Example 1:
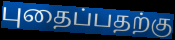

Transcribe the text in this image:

புதைப்பதற்கு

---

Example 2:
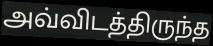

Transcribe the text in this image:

அவ்விடத்திருந்த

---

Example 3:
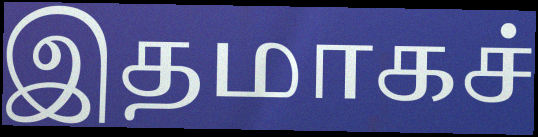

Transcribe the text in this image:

இதமாகச்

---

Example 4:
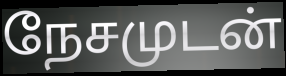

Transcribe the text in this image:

நேசமுடன்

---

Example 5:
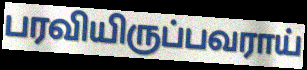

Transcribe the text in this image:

பரவியிருப்பவராய்